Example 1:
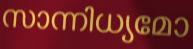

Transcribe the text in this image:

സാന്നിധ്യമോ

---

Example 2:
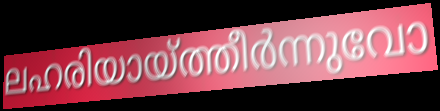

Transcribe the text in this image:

ലഹരിയായ്ത്തീർന്നുവോ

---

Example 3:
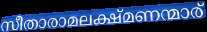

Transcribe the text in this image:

സീതാരാമലക്ഷ്മണന്മാര്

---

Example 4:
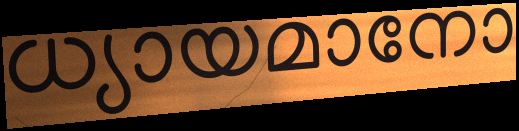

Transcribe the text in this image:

ധ്യായമാനോ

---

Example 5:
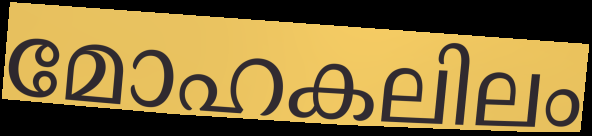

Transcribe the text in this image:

മോഹകലിലം